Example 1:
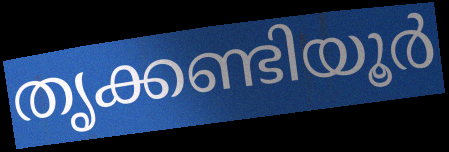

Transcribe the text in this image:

തൃക്കണ്ടിയൂർ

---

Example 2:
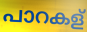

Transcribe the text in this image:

പാറകള്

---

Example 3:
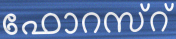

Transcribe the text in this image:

ഫോറസ്റ്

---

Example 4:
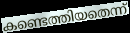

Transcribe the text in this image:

കണ്ടെത്തിയതെന്ന്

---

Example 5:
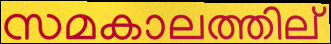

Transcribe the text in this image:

സമകാലത്തില്